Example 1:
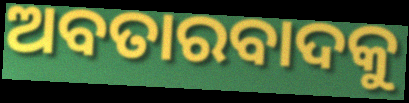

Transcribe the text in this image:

ଅବତାରବାଦକୁ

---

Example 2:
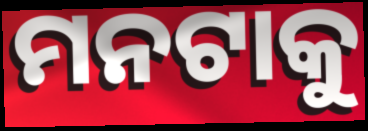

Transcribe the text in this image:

ମନଟାକୁ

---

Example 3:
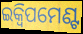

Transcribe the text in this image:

ଇକ୍ୱିପମେଣ୍ଟ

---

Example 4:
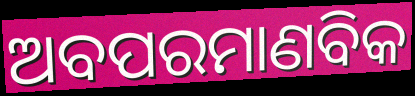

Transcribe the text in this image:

ଅବପରମାଣବିକ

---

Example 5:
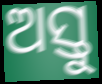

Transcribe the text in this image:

ଅସ୍ତୁ